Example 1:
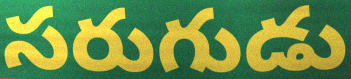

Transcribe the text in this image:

సరుగుడు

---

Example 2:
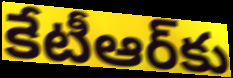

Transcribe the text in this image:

కేటీఆర్‌కు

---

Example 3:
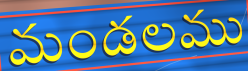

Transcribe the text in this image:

మండలము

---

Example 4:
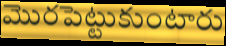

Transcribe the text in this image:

మొరపెట్టుకుంటారు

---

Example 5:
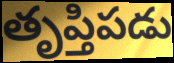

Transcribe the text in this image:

తృప్తిపడు